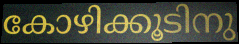
കോഴിക്കൂടിനു